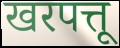
खरपत्तू